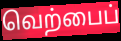
வெற்பைப்